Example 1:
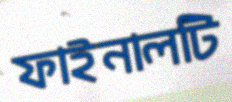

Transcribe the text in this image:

ফাইনালটি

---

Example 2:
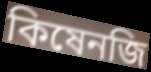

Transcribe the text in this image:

কিষেনজি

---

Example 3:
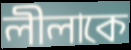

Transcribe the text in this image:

লীলাকে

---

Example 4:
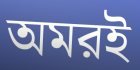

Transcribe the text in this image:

অমরই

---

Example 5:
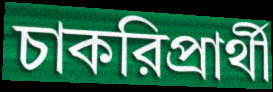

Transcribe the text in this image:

চাকরিপ্রার্থী